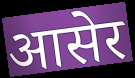
आसेर